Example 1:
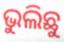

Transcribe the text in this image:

ଭୁଲିଛୁ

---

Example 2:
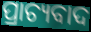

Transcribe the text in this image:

ପ୍ରାଚ୍ୟବାଦ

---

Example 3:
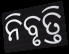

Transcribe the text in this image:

ନିବୃତ୍ତି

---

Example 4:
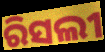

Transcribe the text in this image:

ରିସଲୀ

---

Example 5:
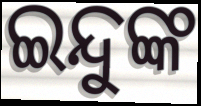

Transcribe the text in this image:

ଇନ୍ଦୁଙ୍କ